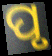
ପୃ